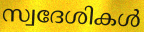
സ്വദേശികൾ